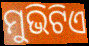
ମୁଭିଟିଏ